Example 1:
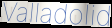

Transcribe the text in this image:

Valladolid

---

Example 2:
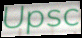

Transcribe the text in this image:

Upsc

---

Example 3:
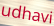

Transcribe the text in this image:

udhavi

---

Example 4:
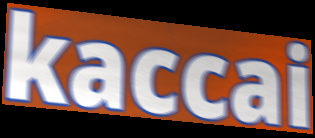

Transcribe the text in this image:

kaccai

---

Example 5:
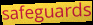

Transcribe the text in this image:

safeguards